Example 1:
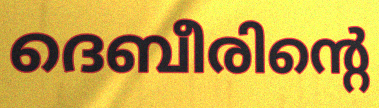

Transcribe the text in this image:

ദെബീരിന്റെ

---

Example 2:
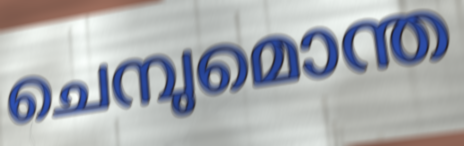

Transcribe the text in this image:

ചെമ്പുമൊന്ത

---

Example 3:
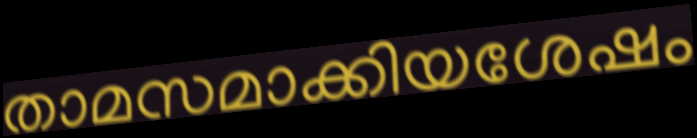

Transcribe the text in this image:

താമസമാക്കിയശേഷം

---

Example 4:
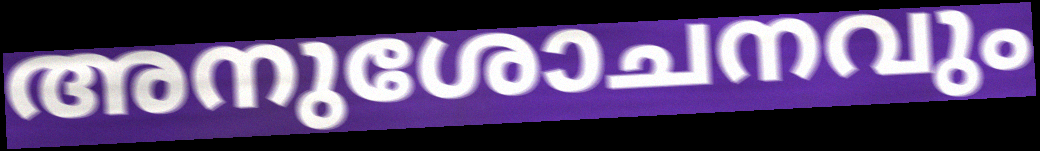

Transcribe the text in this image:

അനുശോചനവും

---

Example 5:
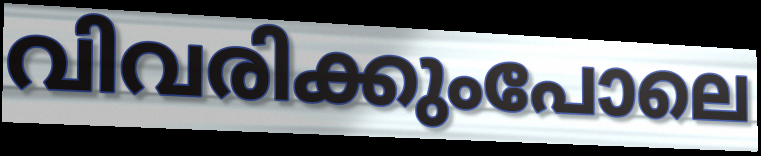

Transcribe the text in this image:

വിവരിക്കുംപോലെ